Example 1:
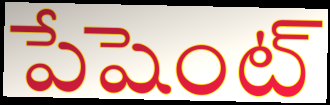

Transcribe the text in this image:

పేషెంట్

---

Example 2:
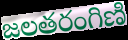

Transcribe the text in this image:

జలతరంగిణి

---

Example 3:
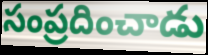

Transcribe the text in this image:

సంప్రదించాడు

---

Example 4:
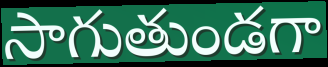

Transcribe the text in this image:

సాగుతుండగా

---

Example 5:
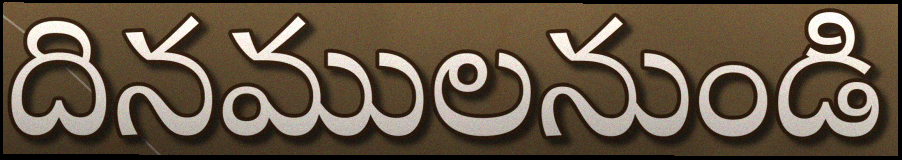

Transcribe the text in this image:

దినములనుండి